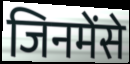
जिनमेंसे